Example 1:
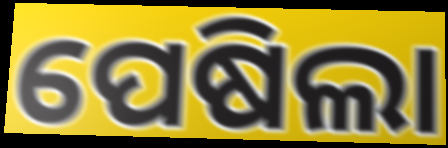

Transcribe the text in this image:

ପେଷିଲା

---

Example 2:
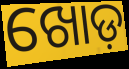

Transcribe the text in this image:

ଖୋଡ଼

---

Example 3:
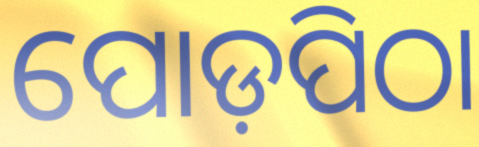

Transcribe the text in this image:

ପୋଡ଼ପିଠା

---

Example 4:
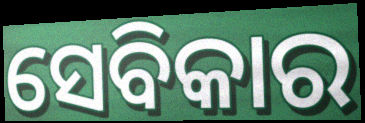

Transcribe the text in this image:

ସେବିକାର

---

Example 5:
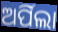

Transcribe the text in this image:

ଅର୍ପିଲା